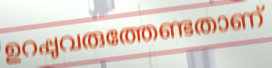
ഉറപ്പുവരുത്തേണ്ടതാണ്